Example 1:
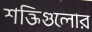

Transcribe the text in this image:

শক্তিগুলোর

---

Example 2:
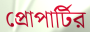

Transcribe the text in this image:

প্রোপার্টির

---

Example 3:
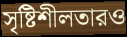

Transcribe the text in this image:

সৃষ্টিশীলতারও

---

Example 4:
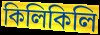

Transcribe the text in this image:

কিলিকিলি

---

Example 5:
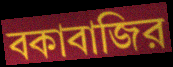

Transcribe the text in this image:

বকাবাজির